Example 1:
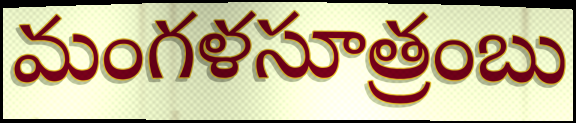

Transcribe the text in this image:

మంగళసూత్రంబు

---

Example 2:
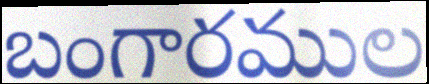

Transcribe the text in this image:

బంగారముల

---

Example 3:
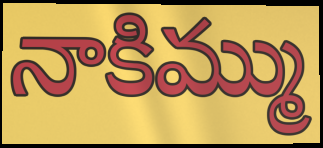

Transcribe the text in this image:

నాకిమ్ము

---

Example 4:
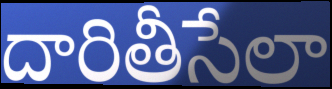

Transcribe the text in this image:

దారితీసేలా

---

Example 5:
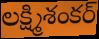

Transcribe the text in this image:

లక్ష్మిశంకర్